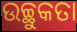
ଉଚ୍ଛୁକତା